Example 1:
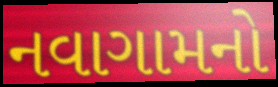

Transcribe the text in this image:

નવાગામનો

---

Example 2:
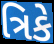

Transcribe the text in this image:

ત્રિકે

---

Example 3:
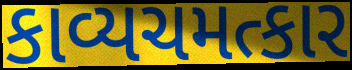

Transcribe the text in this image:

કાવ્યચમત્કાર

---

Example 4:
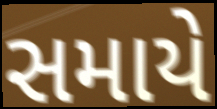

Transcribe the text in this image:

સમાયે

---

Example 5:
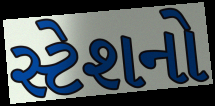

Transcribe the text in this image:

સ્ટેશનો